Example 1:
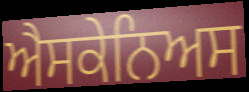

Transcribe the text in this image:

ਐਸਕੇਨਿਅਸ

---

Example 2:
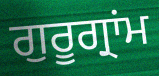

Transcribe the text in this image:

ਗੁਰੂਗ੍ਰਾਂਮ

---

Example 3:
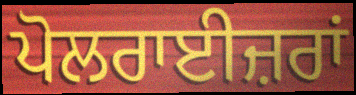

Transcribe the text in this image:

ਪੋਲਰਾਈਜ਼ਰਾਂ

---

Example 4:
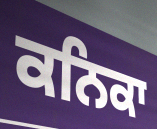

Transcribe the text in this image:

ਕਨਿਕਾ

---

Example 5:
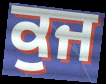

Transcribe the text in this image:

ਕੁਜ